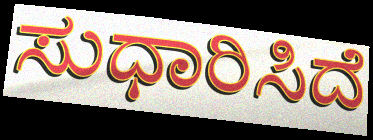
ಸುಧಾರಿಸಿದೆ